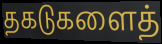
தகடுகளைத்